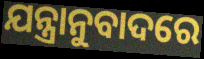
ଯନ୍ତ୍ରାନୁବାଦରେ